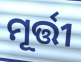
ମୂର୍ତ୍ତୀ